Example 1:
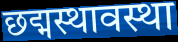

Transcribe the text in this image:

छद्मस्थावस्था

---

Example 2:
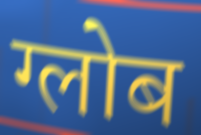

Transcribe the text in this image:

ग्लोब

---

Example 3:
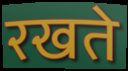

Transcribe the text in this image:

रखते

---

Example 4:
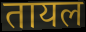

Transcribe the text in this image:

तायल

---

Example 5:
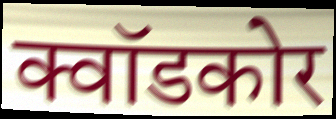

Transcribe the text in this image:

क्वॉडकोर